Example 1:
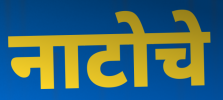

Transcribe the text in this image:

नाटोचे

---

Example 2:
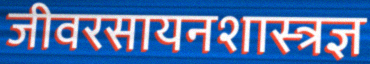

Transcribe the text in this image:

जीवरसायनशास्त्रज्ञ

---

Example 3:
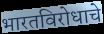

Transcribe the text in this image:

भारतविरोधाचे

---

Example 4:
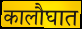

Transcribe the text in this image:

कालौघात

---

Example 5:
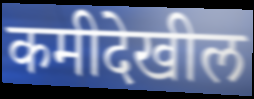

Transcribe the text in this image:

कमीदेखील